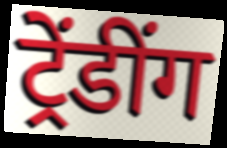
ट्रेंडींग